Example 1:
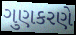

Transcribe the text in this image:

ગુણકરણે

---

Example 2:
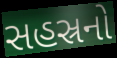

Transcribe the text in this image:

સહસ્રનો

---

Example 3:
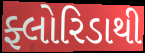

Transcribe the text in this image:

ફ્લોરિડાથી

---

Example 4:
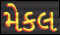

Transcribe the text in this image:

મેકલ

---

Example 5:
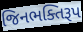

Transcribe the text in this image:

જિનભક્તિરૂપ